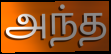
அந்த